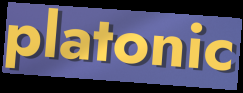
platonic